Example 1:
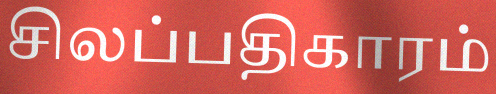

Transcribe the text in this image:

சிலப்பதிகாரம்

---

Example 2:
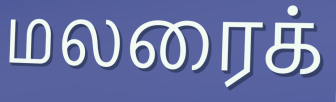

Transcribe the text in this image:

மலரைக்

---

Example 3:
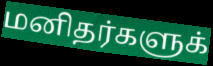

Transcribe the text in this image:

மனிதர்களுக்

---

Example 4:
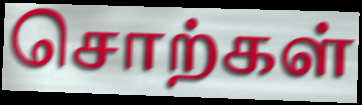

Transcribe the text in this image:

சொற்கள்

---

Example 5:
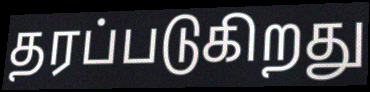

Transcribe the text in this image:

தரப்படுகிறது